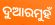
ଦୁଆରମୁହଁ